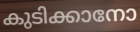
കുടിക്കാനോ